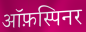
ऑफ़स्पिनर